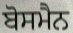
ਬੋਸਮੈਨ